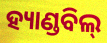
ହ୍ୟାଣ୍ଡବିଲ୍